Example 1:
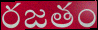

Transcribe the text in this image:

రజతం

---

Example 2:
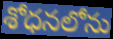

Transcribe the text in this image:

శోధనలోను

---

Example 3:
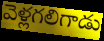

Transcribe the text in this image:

వెళ్లగలిగాడు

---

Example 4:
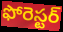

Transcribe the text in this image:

ఫోరెస్టర్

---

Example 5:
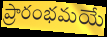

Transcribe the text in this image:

ప్రారంభమయే